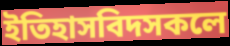
ইতিহাসবিদসকলে